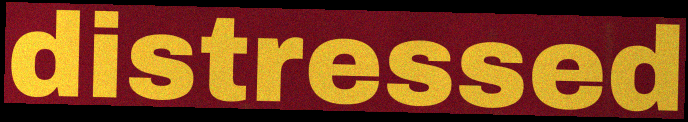
distressed